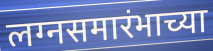
लग्नसमारंभाच्या